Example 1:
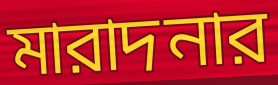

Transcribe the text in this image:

মারাদনার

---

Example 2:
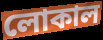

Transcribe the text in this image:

লোকাল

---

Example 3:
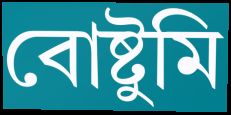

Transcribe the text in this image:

বোষ্টুমি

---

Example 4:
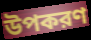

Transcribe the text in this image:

উপকরণ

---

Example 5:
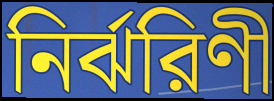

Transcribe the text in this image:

নির্ঝরিণী